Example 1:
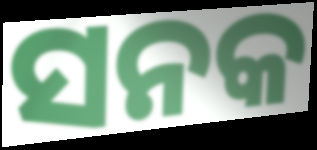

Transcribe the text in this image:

ସନକ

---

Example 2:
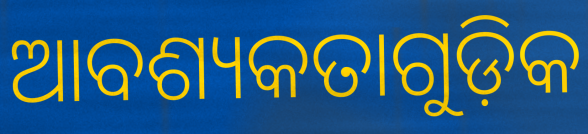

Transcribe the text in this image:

ଆବଶ୍ୟକତାଗୁଡ଼ିକ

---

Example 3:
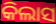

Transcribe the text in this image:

କିଲାସ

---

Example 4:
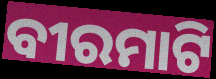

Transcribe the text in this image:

ବୀରମାଟି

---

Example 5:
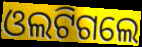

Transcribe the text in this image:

ଓଲଟିଗଲେ